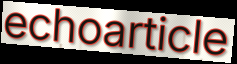
echoarticle